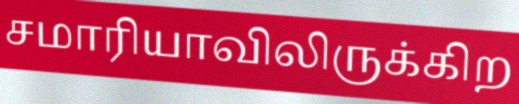
சமாரியாவிலிருக்கிற